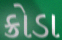
ક્રોડા